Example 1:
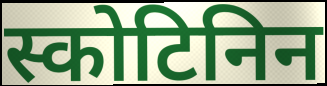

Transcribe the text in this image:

स्कोटिनिन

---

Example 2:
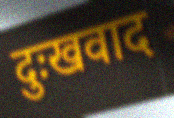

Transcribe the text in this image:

दुःखवाद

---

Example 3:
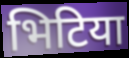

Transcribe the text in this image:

भिटिया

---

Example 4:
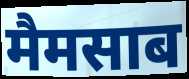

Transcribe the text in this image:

मैमसाब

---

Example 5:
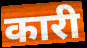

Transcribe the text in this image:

कारी